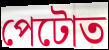
পেটোত